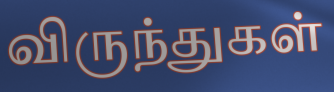
விருந்துகள்